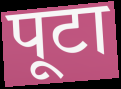
पूटा